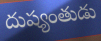
దుష్యంతుడు